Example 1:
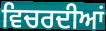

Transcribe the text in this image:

ਵਿਚਰਦੀਆਂ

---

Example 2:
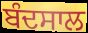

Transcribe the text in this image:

ਬੰਦਸਾਲ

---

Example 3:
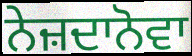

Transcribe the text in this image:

ਨੇਜ਼ਦਾਨੋਵਾ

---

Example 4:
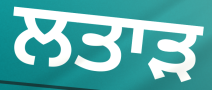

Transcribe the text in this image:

ਲਤਾੜ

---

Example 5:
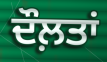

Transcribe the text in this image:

ਦੌਲ਼ਤਾਂ